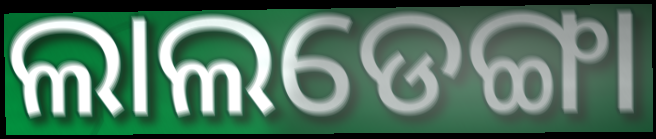
ଲାଲଡେଙ୍ଗା